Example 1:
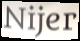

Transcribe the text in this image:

Nijer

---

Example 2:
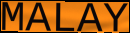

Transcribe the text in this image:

MALAY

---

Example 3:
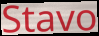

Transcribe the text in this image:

Stavo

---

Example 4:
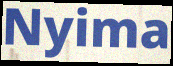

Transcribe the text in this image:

Nyima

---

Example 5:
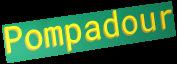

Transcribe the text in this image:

Pompadour